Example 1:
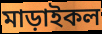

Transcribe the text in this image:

মাড়াইকল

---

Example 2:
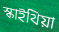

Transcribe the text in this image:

স্কাইথিয়া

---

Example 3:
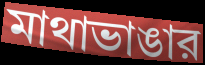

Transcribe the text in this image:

মাথাভাঙার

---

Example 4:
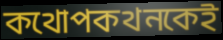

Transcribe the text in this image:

কথোপকথনকেই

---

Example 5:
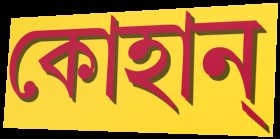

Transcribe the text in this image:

কোহান্